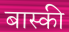
बास्की